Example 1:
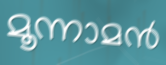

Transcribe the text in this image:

മൂന്നാമൻ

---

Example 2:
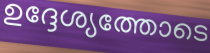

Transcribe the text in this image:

ഉദ്ദേശ്യത്തോടെ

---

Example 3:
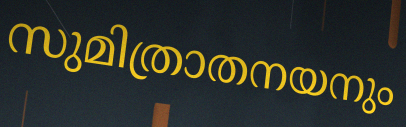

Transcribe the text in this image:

സുമിത്രാതനയനും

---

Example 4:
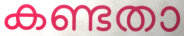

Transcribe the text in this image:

കണ്ടതാ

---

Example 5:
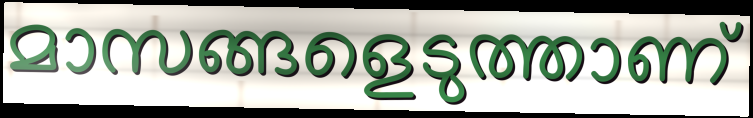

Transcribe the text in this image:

മാസങ്ങളെടുത്താണ്